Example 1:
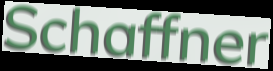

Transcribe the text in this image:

Schaffner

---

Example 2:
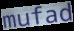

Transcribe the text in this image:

mufad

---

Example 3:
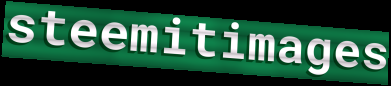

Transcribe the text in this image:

steemitimages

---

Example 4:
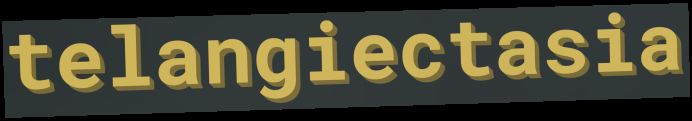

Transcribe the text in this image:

telangiectasia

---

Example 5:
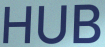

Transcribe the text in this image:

HUB